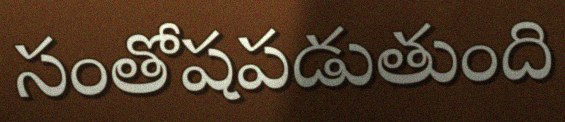
సంతోషపడుతుంది